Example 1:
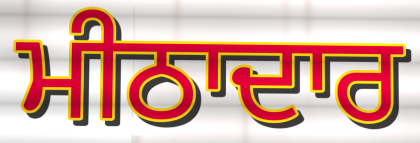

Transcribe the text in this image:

ਮੀਠਾਦਾਰ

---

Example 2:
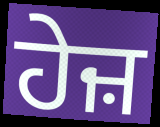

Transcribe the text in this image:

ਹੇਜ਼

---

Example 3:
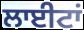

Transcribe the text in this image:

ਲਾਈਟਾਂ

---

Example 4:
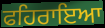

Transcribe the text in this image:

ਫਹਿਰਾਇਆ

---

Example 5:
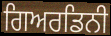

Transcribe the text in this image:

ਗਿਅਰਡਿਨੀ